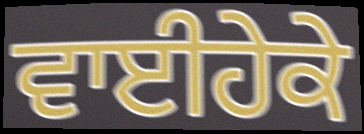
ਵਾਈਹੇਕੇ